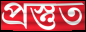
প্রস্তুত